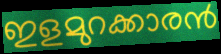
ഇളമുറക്കാരൻ